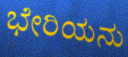
ಭೇರಿಯನು